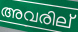
അവരില്